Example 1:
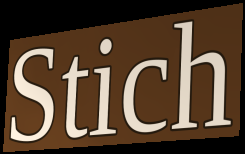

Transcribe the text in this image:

Stich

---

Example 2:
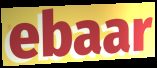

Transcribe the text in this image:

ebaar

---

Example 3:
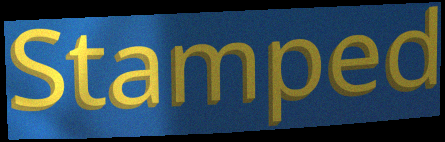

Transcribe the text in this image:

Stamped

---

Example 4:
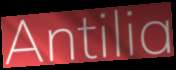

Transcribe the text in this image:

Antilia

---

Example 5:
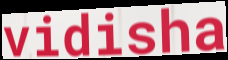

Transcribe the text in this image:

vidisha